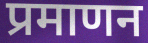
प्रमाणन